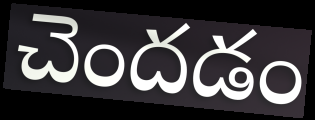
చెందడం